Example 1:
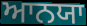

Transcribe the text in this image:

ਆਨਯਾ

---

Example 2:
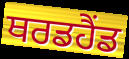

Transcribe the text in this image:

ਥਰਡਹੈਂਡ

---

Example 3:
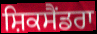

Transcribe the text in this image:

ਸ਼ਿਕਸੈਂਡਰਾ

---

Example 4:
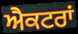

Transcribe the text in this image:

ਐਕਟਰਾਂ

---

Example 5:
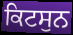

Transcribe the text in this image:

ਕਿਟਸੁਨ